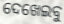
ଦେଖେଇବୁ